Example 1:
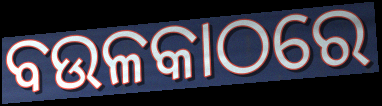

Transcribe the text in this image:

ବଉଳକାଠରେ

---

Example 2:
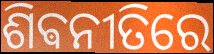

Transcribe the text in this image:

ଶିଵନୀତିରେ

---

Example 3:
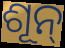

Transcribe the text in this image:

ଶୂନ୍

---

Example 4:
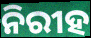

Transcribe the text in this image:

ନିରୀହ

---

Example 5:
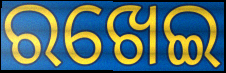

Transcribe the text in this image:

ରଖେଇ